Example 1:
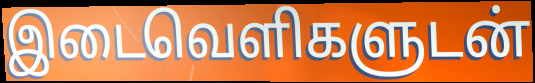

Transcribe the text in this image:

இடைவெளிகளுடன்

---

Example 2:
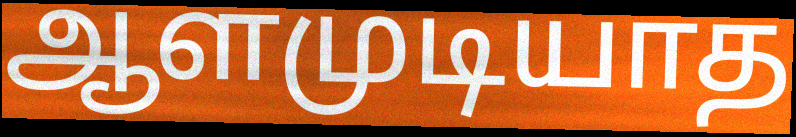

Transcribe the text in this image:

ஆளமுடியாத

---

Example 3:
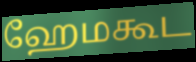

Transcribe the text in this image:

ஹேமகூட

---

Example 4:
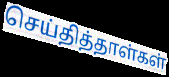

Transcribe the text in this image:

செய்தித்தாள்கள்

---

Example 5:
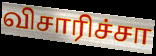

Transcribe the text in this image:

விசாரிச்சா